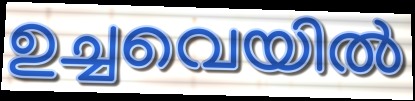
ഉച്ചവെയിൽ